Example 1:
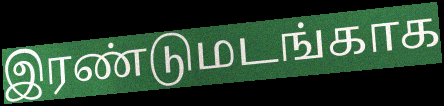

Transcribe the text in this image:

இரண்டுமடங்காக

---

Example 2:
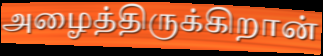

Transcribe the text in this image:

அழைத்திருக்கிறான்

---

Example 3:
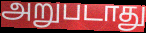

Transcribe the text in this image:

அறுபடாது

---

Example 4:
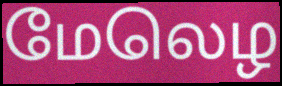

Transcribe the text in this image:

மேலெழ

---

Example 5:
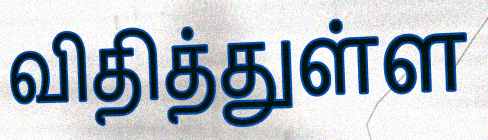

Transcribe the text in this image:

விதித்துள்ள